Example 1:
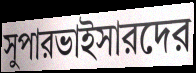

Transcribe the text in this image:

সুপারভাইসারদের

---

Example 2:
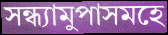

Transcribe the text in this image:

সন্ধ্যামুপাসমহে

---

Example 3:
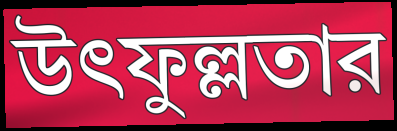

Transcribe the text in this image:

উৎফুল্লতার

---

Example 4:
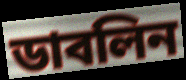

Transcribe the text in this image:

ডাবলিন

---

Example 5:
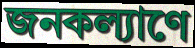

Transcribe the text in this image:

জনকল্যাণে